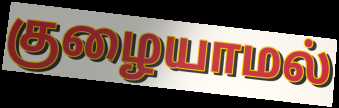
குழையாமல்